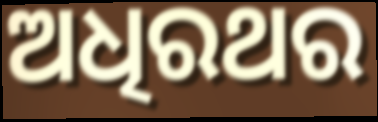
ଅଧିରଥର